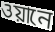
ওয়ানে